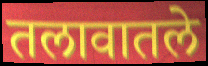
तलावातले